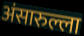
अंसारुल्ला